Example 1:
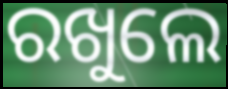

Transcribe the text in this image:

ରଖୁଲେ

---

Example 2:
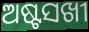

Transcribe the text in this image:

ଅଷ୍ଟସଖୀ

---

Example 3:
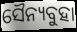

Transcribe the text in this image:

ସୈନ୍ୟବୁହା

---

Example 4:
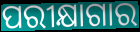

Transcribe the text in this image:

ପରୀକ୍ଷାଗାର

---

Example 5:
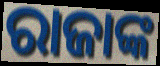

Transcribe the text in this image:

ରାଜାଙ୍କ